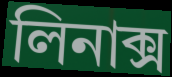
লিনাক্স